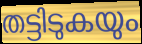
തട്ടിടുകയും